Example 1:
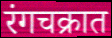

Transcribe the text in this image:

रंगचक्रात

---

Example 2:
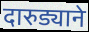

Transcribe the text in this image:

दारुड्याने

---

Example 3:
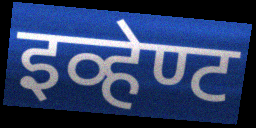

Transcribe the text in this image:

इव्हेण्ट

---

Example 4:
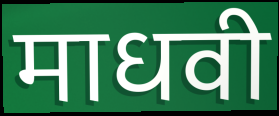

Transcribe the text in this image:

माधवी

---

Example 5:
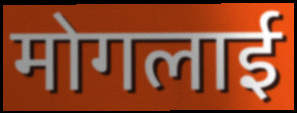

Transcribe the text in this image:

मोगलाई